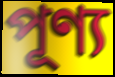
পূণ্য